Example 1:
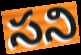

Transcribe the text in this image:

సని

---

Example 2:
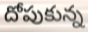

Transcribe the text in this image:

దోపుకున్న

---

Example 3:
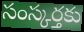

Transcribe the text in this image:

సంస్కర్తకు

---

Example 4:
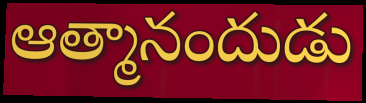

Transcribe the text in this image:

ఆత్మానందుడు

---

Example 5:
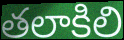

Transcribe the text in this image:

తలాకిలి